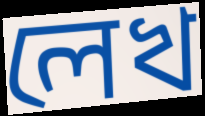
লেখ